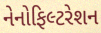
નેનોફિલ્ટરેશન